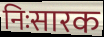
निःसारक